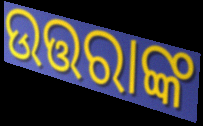
ଉତ୍ତରାଙ୍କ